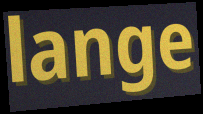
lange